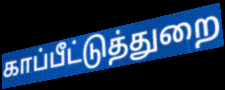
காப்பீட்டுத்துறை